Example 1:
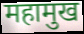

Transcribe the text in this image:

महामुख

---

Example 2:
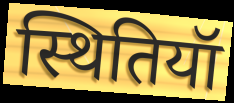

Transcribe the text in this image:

स्थितियॉ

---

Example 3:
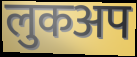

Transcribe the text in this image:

लुकअप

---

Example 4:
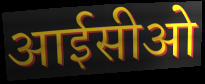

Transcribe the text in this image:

आईसीओ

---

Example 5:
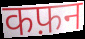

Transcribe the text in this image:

कफ़न